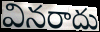
వినరాదు